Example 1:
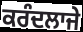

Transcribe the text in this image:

ਕਰੰਦਲਾਜੇ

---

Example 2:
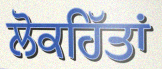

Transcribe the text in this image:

ਲੋਕਹਿੱਤਾਂ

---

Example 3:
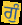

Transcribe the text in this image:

ਗੁੰ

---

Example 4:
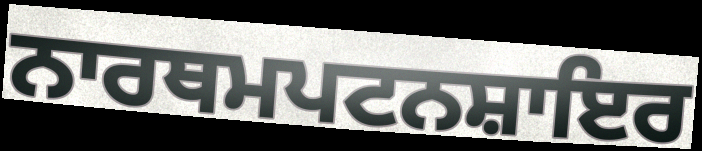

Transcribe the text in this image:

ਨਾਰਥਮਪਟਨਸ਼ਾਇਰ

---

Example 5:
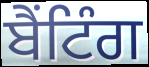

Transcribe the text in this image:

ਬੈਂਟਿੰਗ